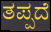
ತಪ್ಪದೆ